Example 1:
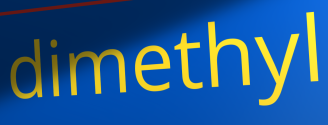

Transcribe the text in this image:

dimethyl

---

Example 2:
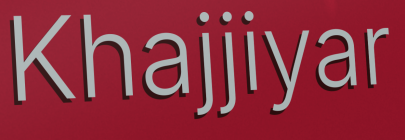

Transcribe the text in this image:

Khajjiyar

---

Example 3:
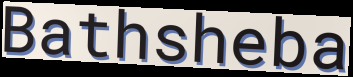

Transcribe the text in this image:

Bathsheba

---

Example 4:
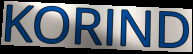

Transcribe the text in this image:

KORIND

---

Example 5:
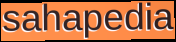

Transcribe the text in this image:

sahapedia